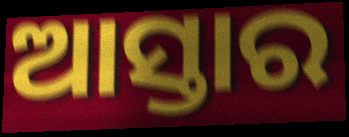
ଆସ୍ତାର